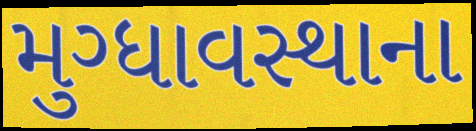
મુગ્ધાવસ્થાના